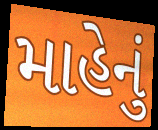
માહેનું